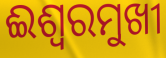
ଈଶ୍ୱରମୁଖୀ